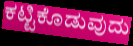
ಕಟ್ಟಿಕೊಡುವುದು